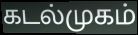
கடல்முகம்